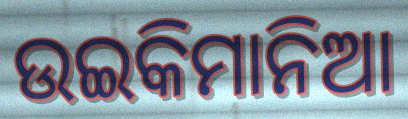
ଉଇକିମାନିଆ